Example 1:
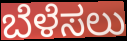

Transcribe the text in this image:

ಬೆಳೆಸಲು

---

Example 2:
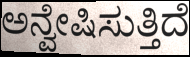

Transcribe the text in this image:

ಅನ್ವೇಷಿಸುತ್ತಿದೆ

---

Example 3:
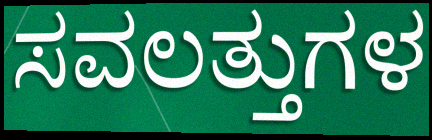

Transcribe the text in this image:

ಸವಲತ್ತುಗಳ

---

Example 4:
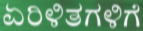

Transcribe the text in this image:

ಏರಿಳಿತಗಳಿಗೆ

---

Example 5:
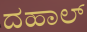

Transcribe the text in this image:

ದಹಾಲ್